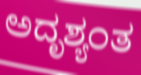
ಅದೃಶ್ಯಂತ